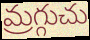
మ్రగ్గుచు